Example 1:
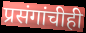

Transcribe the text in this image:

प्रसंगांचीही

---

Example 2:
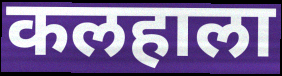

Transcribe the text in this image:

कलहाला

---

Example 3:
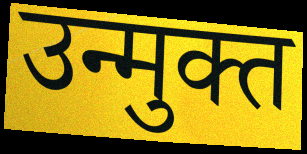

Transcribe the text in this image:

उन्मुक्त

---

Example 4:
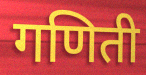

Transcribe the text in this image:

गणिती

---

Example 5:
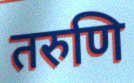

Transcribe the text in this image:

तरुणि